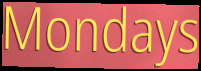
Mondays